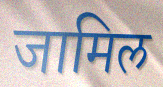
जामिल